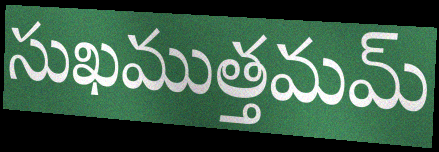
సుఖముత్తమమ్